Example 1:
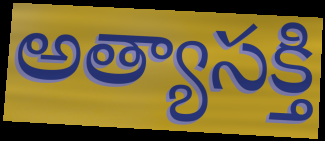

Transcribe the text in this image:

అత్యాసక్తి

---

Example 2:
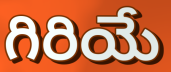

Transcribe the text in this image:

గిరియే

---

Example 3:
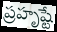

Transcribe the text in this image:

ప్రహృష్టే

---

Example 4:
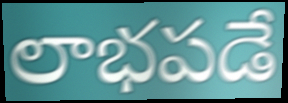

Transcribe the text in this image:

లాభపడే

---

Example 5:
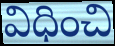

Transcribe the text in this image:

విధించి